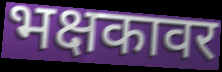
भक्षकावर